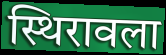
स्थिरावला